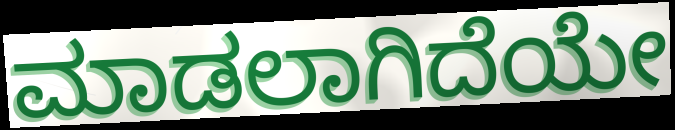
ಮಾಡಲಾಗಿದೆಯೇ